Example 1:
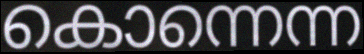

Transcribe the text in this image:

കൊന്നെന്ന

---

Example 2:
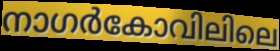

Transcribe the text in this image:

നാഗർകോവിലിലെ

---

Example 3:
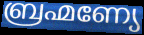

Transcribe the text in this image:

ബ്രഹ്മണ്യേ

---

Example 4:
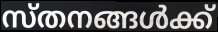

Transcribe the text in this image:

സ്തനങ്ങൾക്ക്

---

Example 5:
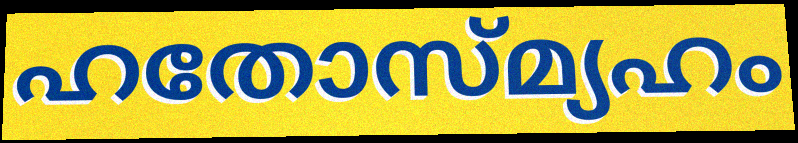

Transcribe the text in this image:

ഹതോസ്മ്യഹം